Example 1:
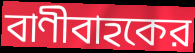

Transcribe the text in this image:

বাণীবাহকের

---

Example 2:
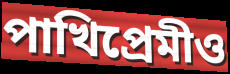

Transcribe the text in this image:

পাখিপ্রেমীও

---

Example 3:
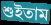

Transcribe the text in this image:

শুইতাম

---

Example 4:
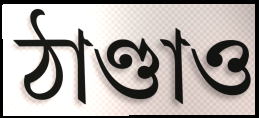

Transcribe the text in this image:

ঠাণ্ডাও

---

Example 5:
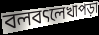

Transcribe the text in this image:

বলবৎলেখাপড়া